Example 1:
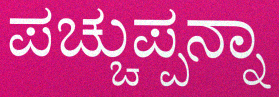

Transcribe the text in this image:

ಪಚ್ಚುಪ್ಪನ್ನಾ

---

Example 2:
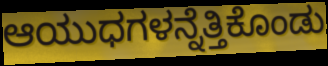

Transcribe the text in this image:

ಆಯುಧಗಳನ್ನೆತ್ತಿಕೊಂಡು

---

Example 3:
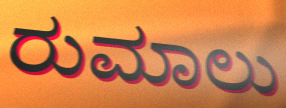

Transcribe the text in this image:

ರುಮಾಲು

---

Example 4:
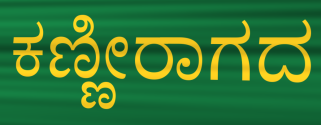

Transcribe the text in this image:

ಕಣ್ಣೀರಾಗದ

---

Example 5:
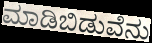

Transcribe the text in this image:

ಮಾಡಿಬಿಡುವೆನು